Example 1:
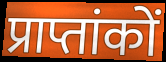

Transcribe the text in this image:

प्राप्तांकों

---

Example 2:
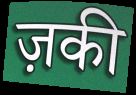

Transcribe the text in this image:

ज़की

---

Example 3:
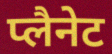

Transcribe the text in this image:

प्लैनेट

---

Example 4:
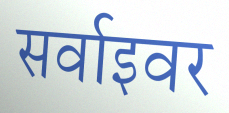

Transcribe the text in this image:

सर्वाइवर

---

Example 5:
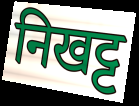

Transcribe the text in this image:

निखट्ट